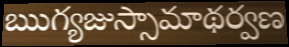
ఋగ్యజుస్సామాథర్వణ